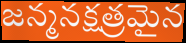
జన్మనక్షత్రమైన